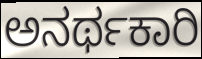
ಅನರ್ಥಕಾರಿ